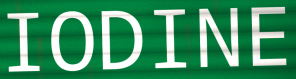
IODINE